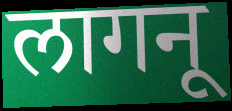
लागनू